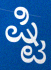
ಷ್ಟಿ